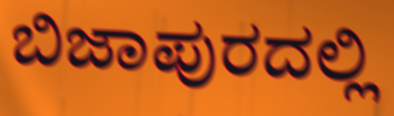
ಬಿಜಾಪುರದಲ್ಲಿ